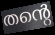
തന്റെ